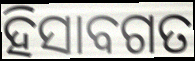
ହିସାବଗତ